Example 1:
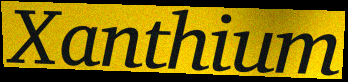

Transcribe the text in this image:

Xanthium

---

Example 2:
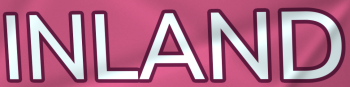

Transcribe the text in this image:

INLAND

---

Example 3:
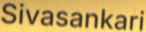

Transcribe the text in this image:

Sivasankari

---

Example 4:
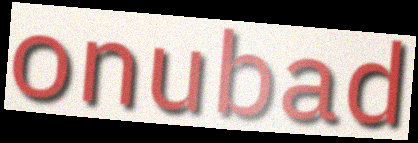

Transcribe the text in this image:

onubad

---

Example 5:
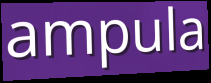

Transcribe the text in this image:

ampula